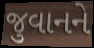
જુવાનને